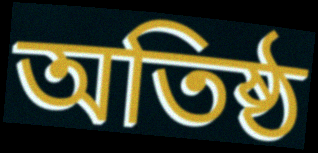
অতিষ্ঠ